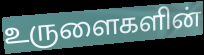
உருளைகளின்